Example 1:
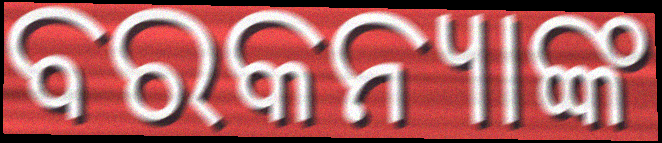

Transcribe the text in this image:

ବରକନ୍ୟାଙ୍କ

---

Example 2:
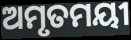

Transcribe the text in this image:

ଅମୃତମୟୀ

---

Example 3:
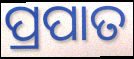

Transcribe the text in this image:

ପ୍ରପାତ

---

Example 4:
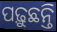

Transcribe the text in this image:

ପଢ଼ୁଛନ୍ତି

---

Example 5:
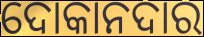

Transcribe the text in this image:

ଦୋକାନଦାର